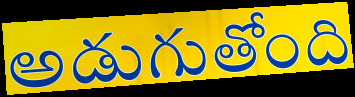
అడుగుతోంది